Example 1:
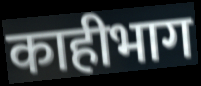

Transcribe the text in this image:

काहीभाग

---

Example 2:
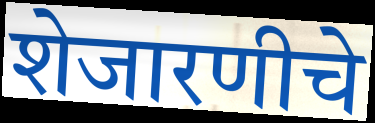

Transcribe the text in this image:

शेजारणीचे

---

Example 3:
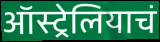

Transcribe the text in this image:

ऑस्ट्रेलियाचं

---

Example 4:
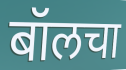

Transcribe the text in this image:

बॉलचा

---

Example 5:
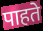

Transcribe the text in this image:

पाहते